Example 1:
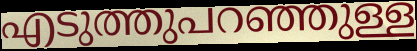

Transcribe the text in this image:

എടുത്തുപറഞ്ഞുള്ള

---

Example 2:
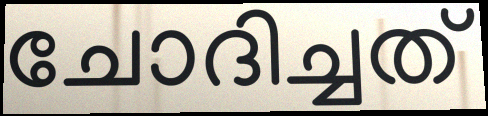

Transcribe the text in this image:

ചോദിച്ചത്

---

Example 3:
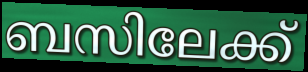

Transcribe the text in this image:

ബസിലേക്ക്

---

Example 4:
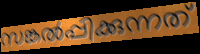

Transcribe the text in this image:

സങ്കൽപ്പിക്കുന്നത്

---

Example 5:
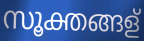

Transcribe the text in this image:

സൂക്തങ്ങള്